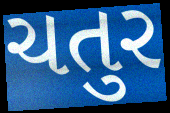
ચતુર